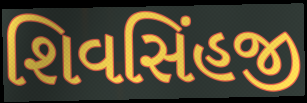
શિવસિંહજી